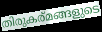
തിരുകര്മങ്ങളുടെ